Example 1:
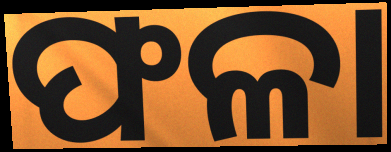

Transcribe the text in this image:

ଫଳା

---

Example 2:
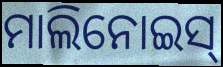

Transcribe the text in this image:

ମାଲିନୋଇସ୍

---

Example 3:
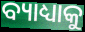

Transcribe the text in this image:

ବ୍ୟାଧ୍ୟାକୁ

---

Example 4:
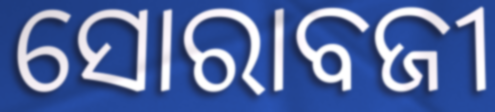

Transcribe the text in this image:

ସୋରାବଜୀ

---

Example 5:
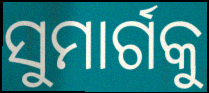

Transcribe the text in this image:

ସୁମାର୍ଗକୁ